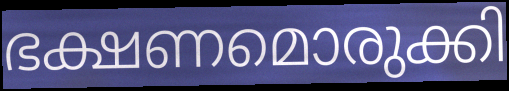
ഭക്ഷണമൊരുക്കി